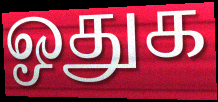
ஓதுக